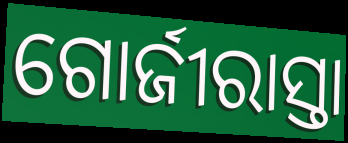
ଗୋର୍ଜୀରାସ୍ତା